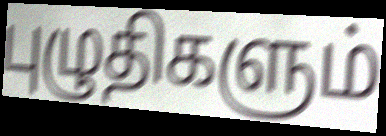
புழுதிகளும்